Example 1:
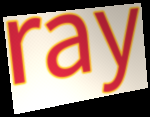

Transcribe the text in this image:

ray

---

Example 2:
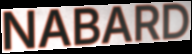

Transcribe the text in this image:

NABARD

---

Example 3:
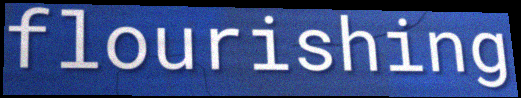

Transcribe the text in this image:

flourishing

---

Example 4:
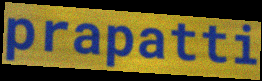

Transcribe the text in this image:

prapatti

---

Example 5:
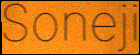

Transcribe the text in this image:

Soneji